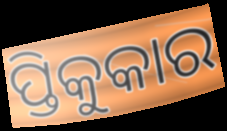
ପ୍ତିକୁକାର